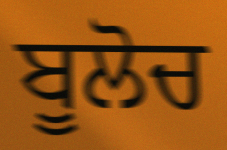
ਬੂਲੋਚ